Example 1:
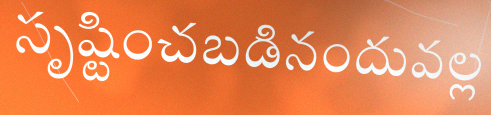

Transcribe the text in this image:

సృష్టించబడినందువల్ల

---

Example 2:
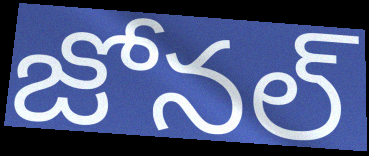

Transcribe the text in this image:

జోనల్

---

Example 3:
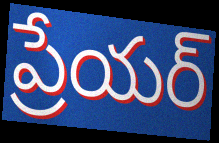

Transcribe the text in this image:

ప్రేయర్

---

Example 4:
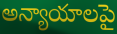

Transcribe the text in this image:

అన్యాయాలపై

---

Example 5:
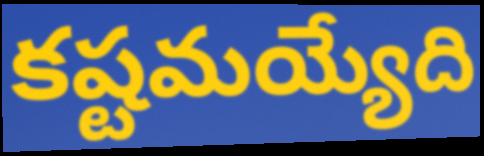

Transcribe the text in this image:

కష్టమయ్యేది